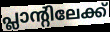
പ്ലാന്റിലേക്ക്